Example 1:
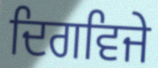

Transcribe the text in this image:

ਦਿਗਵਿਜੇ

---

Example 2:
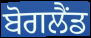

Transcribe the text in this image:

ਬੋਗਲੈਂਡ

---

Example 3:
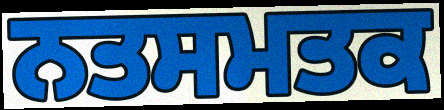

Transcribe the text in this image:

ਨਤਸਮਤਕ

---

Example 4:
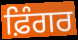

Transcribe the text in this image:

ਫ਼ਿੰਗਰ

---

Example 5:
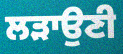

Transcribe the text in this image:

ਲੜਾਉਣੀ